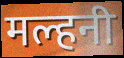
मल्हनी